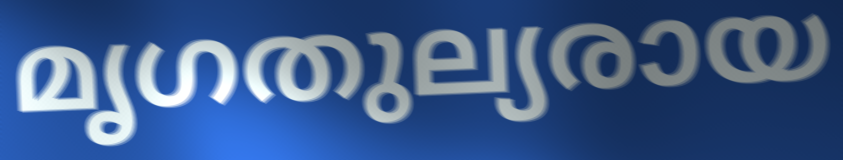
മൃഗതുല്യരായ